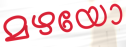
മഴയോ